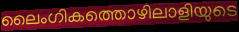
ലൈംഗികത്തൊഴിലാളിയുടെ